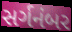
સર્ગનંબર